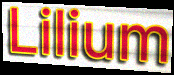
Lilium